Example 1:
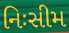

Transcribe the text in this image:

નિઃસીમ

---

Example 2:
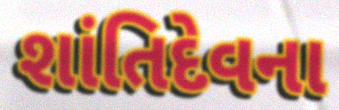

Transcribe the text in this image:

શાંતિદેવના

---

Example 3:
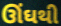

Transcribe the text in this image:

ઊંઘથી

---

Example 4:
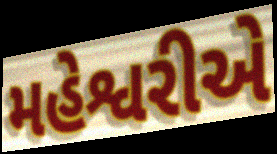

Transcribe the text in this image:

મહેશ્વરીએ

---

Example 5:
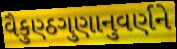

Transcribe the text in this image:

વૈકુણ્ઠગુણાનુવર્ણને